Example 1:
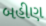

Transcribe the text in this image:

બહીણ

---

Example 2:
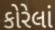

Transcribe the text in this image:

કોરેલાં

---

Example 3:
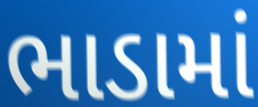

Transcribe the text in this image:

ભાડામાં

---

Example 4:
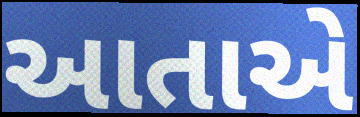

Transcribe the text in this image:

આતાએ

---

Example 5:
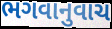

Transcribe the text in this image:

ભગવાનુવાચ